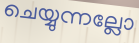
ചെയ്യുന്നല്ലോ